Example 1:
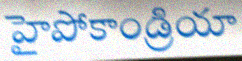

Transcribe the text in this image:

హైపోకాండ్రియా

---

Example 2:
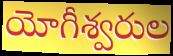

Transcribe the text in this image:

యోగీశ్వరుల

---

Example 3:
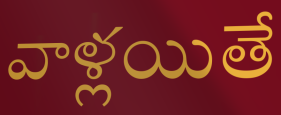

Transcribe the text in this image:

వాళ్లయితే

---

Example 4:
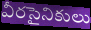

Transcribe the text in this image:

వీరసైనికులు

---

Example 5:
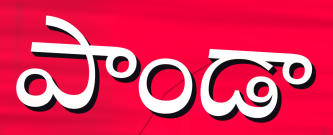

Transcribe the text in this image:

పాండా